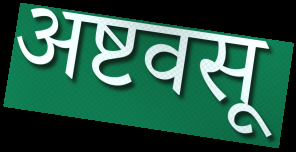
अष्टवसू